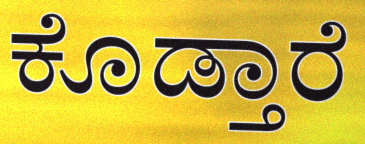
ಕೊಡ್ತಾರೆ